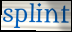
splint